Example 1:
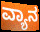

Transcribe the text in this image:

ವ್ಯಾನ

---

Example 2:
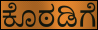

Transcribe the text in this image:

ಕೊಠಡಿಗೆ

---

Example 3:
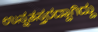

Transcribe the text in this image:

ಉನ್ನತಸ್ತರದ್ದಾಗಿದ್ದು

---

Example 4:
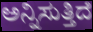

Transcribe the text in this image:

ಅನ್ನಿಸುತ್ತಿದೆ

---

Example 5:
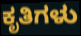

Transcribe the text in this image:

ಕೃತಿಗಳು